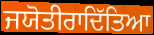
ਜਯੋਤੀਰਾਦਿੱਤਿਆ